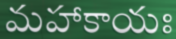
మహాకాయః